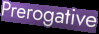
Prerogative